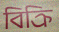
বিক্রি